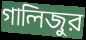
গালিজুর